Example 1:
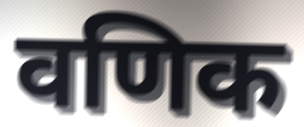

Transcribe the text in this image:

वणिक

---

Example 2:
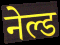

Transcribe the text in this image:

नेल्ड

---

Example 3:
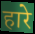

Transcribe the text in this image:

हारे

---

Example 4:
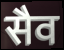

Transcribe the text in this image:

सैव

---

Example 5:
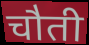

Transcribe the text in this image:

चौती